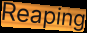
Reaping